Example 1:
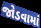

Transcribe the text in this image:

જોડવામાં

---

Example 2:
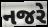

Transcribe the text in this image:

નજરે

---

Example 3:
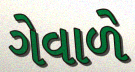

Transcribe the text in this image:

ગેવાળે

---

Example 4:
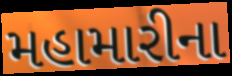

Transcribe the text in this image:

મહામારીના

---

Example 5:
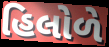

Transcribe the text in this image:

હિલોળે